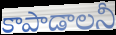
కాపాడాలనీ